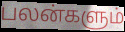
பலன்களும்